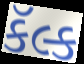
કૅલ્ક